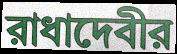
রাধাদেবীর